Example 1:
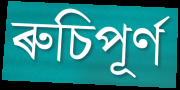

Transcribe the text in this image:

ৰুচিপূৰ্ণ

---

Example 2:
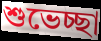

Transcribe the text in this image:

শুভেচ্ছা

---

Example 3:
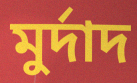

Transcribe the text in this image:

মুৰ্দাদ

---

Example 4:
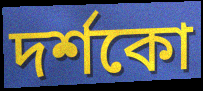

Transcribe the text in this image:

দৰ্শকো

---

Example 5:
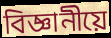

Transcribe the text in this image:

বিজ্ঞানীয়ে